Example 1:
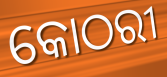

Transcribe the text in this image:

କୋଠରୀ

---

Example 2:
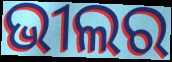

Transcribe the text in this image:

ଭୀଲର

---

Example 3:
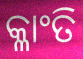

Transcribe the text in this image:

କ୍ଳାଂତି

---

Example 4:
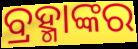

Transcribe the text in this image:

ବ୍ରହ୍ମାଙ୍କର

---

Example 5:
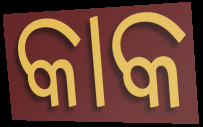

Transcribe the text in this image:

କାକ